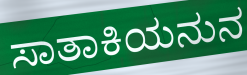
ಸಾತಾಕಿಯನುನ